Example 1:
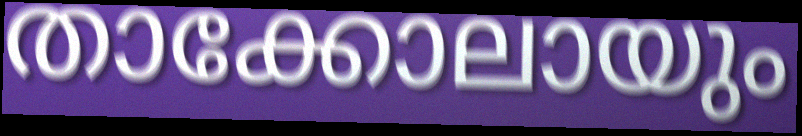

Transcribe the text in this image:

താക്കോലായും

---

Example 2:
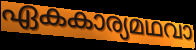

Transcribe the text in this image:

ഏകകാര്യമഥവാ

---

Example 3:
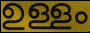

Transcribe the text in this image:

ഉള്ളം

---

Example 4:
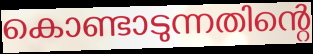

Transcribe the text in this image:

കൊണ്ടാടുന്നതിന്റെ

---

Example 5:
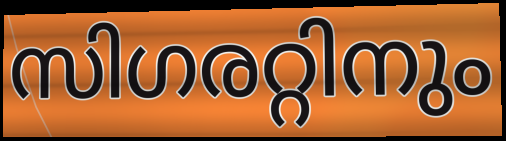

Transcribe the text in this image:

സിഗരറ്റിനും